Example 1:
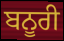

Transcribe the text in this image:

ਬਨੂਰੀ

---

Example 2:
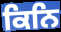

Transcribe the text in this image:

ਕਿਨਿ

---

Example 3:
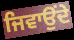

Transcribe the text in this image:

ਜਿਵਾਉਂਦੇ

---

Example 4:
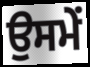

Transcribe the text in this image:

ਉਸਮੇਂ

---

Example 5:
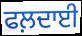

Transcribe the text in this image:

ਫਲ਼ਦਾਈ